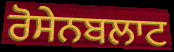
ਰੋਸੇਨਬਲਾਟ